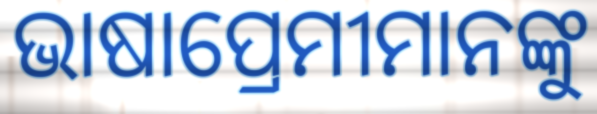
ଭାଷାପ୍ରେମୀମାନଙ୍କୁ